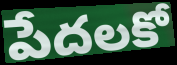
పేదలకో